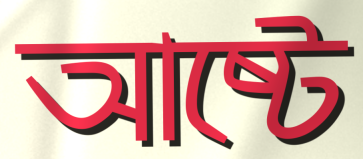
আষ্টে